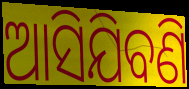
ଆସିଯିବଣି